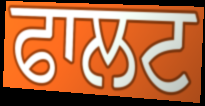
ਫਾਲਟ